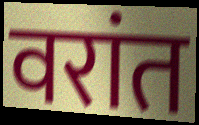
वरांत